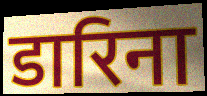
डारिना